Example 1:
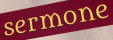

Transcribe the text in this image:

sermone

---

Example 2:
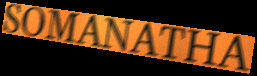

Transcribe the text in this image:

SOMANATHA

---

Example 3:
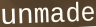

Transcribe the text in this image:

unmade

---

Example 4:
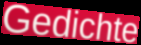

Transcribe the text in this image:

Gedichte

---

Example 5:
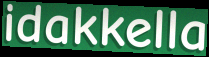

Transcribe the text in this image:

idakkella